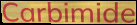
Carbimide